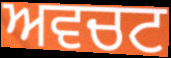
ਅਵਚਟ